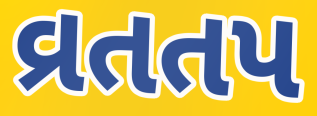
વ્રતતપ